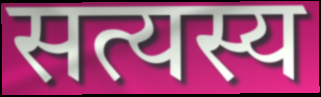
सत्यस्य